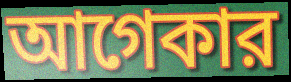
আগেকার